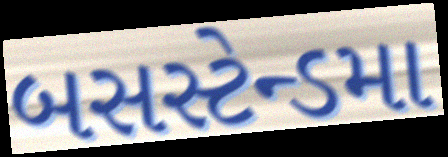
બસસ્ટેન્ડમા